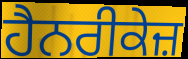
ਹੈਨਰੀਕੇਜ਼